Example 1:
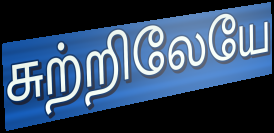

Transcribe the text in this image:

சுற்றிலேயே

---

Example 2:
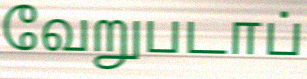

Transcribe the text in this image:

வேறுபடாப்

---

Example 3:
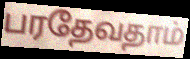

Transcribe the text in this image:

பரதேவதாம்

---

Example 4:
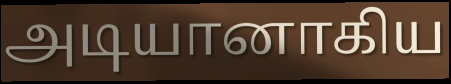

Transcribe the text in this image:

அடியானாகிய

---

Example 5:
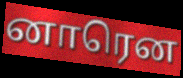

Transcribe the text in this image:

னாரென